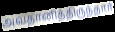
அவதானித்திருந்தார்